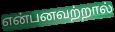
என்பனவற்றால்